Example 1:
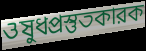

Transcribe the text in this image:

ওষুধপ্রস্তুতকারক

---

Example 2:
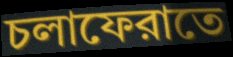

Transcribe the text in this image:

চলাফেরাতে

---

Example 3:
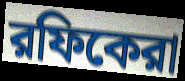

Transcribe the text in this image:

রফিকেরা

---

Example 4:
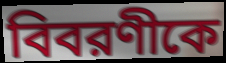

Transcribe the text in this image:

বিবরণীকে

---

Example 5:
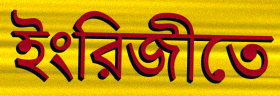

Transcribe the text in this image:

ইংরিজীতে